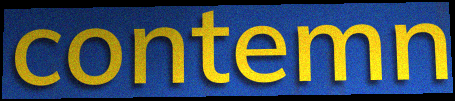
contemn